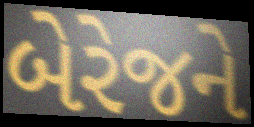
બેરેજને